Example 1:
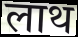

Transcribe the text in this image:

लाथ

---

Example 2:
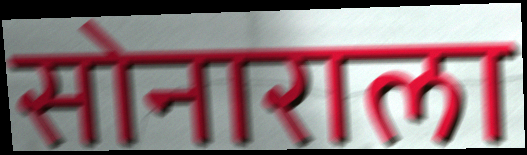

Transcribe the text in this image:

सोनाराला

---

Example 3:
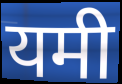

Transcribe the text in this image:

यमी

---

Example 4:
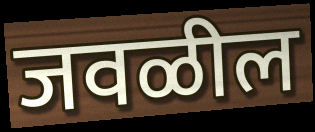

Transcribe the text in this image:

जवळील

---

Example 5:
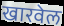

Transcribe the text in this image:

खारवेल